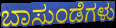
ಬಾಸುಂಡೆಗಳು